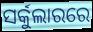
ସର୍କୁଲାରରେ